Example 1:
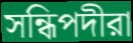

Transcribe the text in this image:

সন্ধিপদীরা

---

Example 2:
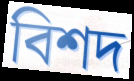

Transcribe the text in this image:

বিশদ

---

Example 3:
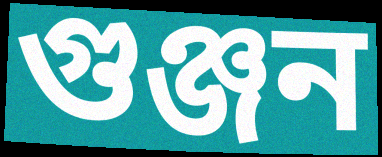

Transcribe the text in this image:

গুঞ্জন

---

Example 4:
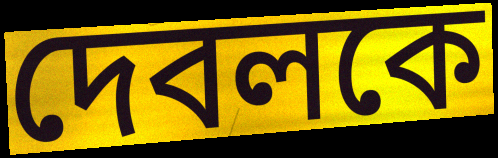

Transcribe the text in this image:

দেবলকে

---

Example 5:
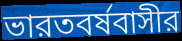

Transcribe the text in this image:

ভারতবর্ষবাসীর